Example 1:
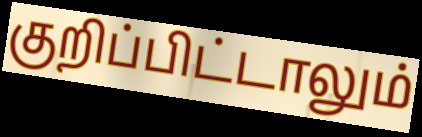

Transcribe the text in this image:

குறிப்பிட்டாலும்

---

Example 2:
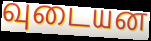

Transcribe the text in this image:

வுடையன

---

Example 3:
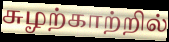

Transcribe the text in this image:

சுழற்காற்றில்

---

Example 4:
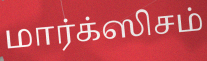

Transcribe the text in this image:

மார்க்ஸிசம்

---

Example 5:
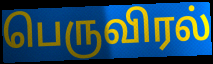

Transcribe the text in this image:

பெருவிரல்